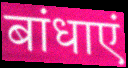
बांधाएं